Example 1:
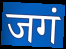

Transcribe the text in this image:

जगं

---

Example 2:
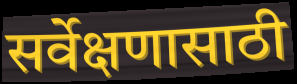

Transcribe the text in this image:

सर्वेक्षणासाठी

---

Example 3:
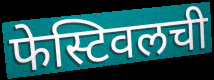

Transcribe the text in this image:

फेस्टिवलची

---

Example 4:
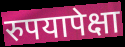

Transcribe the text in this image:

रुपयापेक्षा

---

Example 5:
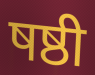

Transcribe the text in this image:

षष्ठी